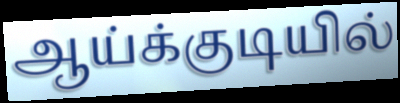
ஆய்க்குடியில்